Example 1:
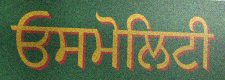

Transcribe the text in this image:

ਓਸਮੋਲਿਟੀ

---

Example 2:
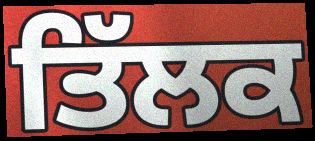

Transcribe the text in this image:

ਤਿੱਲਕ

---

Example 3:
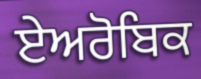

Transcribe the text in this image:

ਏਅਰੋਬਿਕ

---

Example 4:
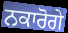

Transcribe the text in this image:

ਨਕਾਰੋਗੇ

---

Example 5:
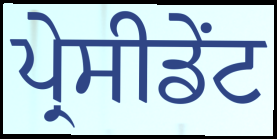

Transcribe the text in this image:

ਪ੍ਰੇਸੀਡੇਂਟ